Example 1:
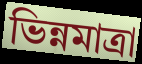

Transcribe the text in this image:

ভিন্নমাত্রা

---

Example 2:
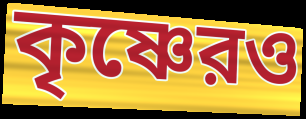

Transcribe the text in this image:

কৃষ্ণেরও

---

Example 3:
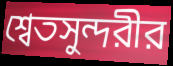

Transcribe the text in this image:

শ্বেতসুন্দরীর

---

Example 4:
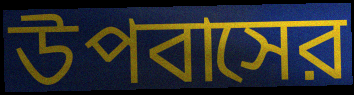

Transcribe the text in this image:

উপবাসের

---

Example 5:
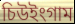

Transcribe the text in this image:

চিউইংগাম